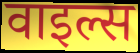
वाइल्स